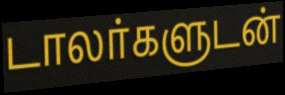
டாலர்களுடன்